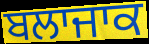
ਬਲਾਜਾਕ